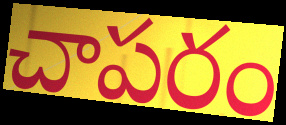
చాపరం